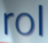
rol